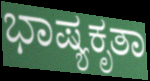
ಭಾಷ್ಯಕೃತಾ